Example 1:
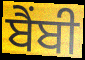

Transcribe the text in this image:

ਬੈਂਬੀ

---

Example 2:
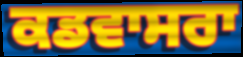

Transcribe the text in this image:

ਕਡਵਾਸਰਾ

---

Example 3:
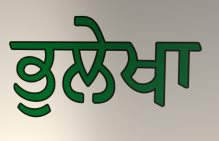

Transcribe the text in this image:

ਭੁਲੇਖਾ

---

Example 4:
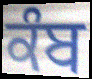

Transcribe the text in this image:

ਕੰਬ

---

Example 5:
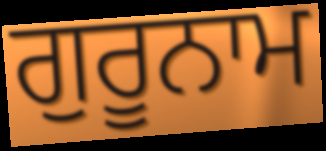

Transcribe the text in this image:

ਗੁਰੂਨਾਮ